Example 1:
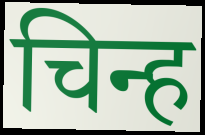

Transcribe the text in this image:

चिन्ह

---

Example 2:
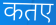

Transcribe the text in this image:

कतए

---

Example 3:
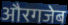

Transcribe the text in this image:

औरगजेब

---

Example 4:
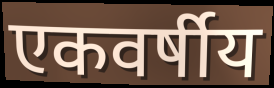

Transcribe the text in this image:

एकवर्षीय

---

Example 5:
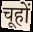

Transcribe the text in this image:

चूहों